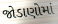
જોડાણોમાં